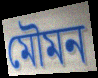
মৌমন